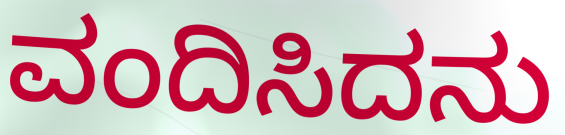
ವಂದಿಸಿದನು